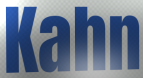
Kahn